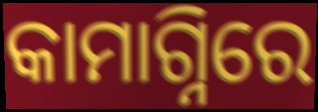
କାମାଗ୍ନିରେ